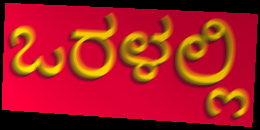
ಒರಳಲ್ಲಿ